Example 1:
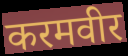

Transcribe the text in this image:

करमवीर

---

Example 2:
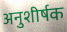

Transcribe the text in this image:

अनुशीर्षक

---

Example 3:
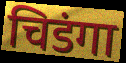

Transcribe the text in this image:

चिडंगा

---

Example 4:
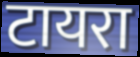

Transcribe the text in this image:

टायरा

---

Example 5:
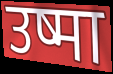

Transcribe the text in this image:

उष्मा